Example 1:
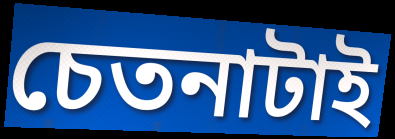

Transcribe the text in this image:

চেতনাটাই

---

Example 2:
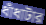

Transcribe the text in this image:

ধাঁধাটার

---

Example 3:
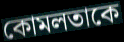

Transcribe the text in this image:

কোমলতাকে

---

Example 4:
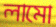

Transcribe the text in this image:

লামো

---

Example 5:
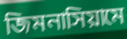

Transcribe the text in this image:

জিমনাসিয়ামে